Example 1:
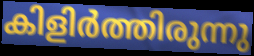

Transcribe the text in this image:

കിളിർത്തിരുന്നു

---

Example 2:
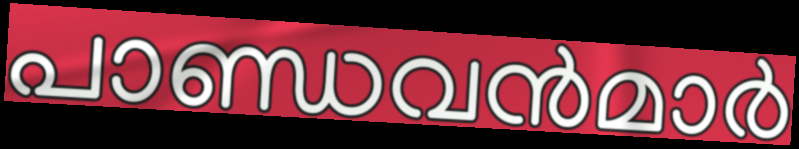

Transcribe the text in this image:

പാണ്ഡവൻമാർ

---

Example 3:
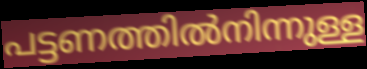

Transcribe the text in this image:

പട്ടണത്തിൽനിന്നുള്ള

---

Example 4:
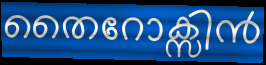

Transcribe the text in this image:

തൈറോക്സിൻ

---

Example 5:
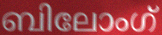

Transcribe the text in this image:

ബിലോംഗ്